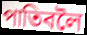
পাতিবলৈ